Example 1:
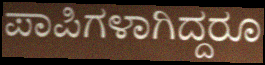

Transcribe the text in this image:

ಪಾಪಿಗಳಾಗಿದ್ದರೂ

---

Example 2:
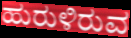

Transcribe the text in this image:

ಹುರುಳಿರುವ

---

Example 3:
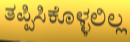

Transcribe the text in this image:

ತಪ್ಪಿಸಿಕೊಳ್ಳಲಿಲ್ಲ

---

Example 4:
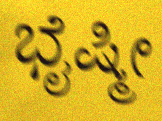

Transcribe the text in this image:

ಭೈಷ್ಮೀ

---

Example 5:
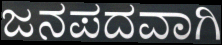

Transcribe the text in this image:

ಜನಪದವಾಗಿ